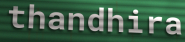
thandhira